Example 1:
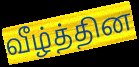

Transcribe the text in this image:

வீழ்த்தின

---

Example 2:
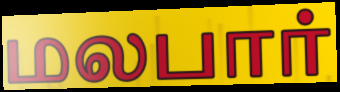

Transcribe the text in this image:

மலபார்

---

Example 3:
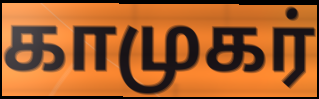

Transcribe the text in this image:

காமுகர்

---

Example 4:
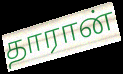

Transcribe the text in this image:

தாரான்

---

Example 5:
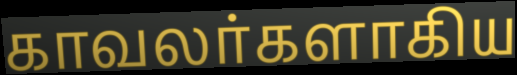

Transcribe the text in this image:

காவலர்களாகிய